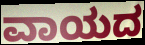
ವಾಯದ